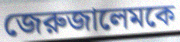
জেরুজালেমকে